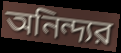
অনিন্দ্যর